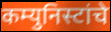
कम्युनिस्टांचे